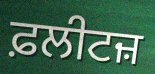
ਫ਼ਲੀਟਜ਼